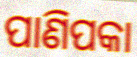
ପାଣିପକା